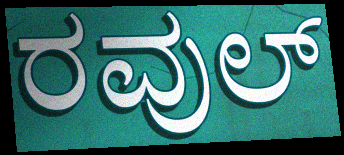
ರವುಲ್